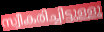
സ്വീകരിച്ചിട്ടുള്ളൂ